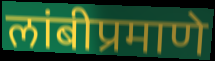
लांबीप्रमाणे